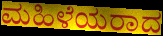
ಮಹಿಳೆಯರಾದ